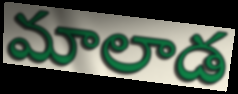
మాలాడ